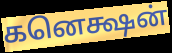
கனெக்ஷன்